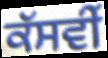
ਕੱਸਵੀਂ